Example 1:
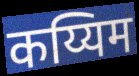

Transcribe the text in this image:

कय्यिम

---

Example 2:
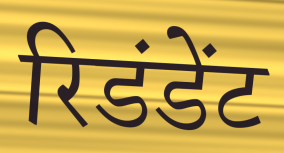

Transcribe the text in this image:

रिडंडेंट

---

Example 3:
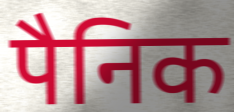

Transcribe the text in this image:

पैनिक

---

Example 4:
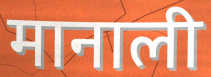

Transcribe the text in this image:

मानाली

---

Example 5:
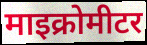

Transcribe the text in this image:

माइक्रोमीटर